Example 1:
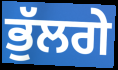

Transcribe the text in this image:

ਭੁੱਲਗੇ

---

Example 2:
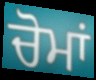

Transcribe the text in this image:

ਚੋਮਾਂ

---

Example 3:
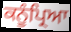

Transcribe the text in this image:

ਕਨੂੰਪ੍ਰਿਆ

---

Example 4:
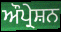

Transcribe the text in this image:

ਔਪ੍ਰੇਸ਼ਨ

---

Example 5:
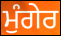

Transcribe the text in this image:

ਮੁੰਗੇਰ